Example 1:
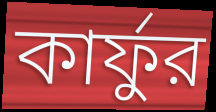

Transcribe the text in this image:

কার্ফুর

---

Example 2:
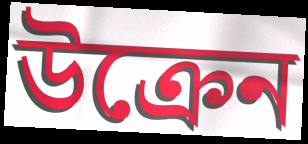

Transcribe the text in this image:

উক্রেন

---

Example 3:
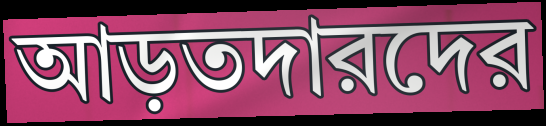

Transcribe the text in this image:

আড়তদারদের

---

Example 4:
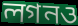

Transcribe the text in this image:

লগনও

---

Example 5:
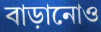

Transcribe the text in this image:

বাড়ানোও